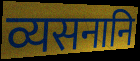
व्यसनानि